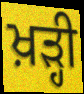
ਖ਼ੜ੍ਹੀ